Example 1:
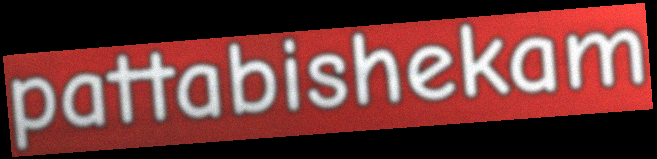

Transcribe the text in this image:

pattabishekam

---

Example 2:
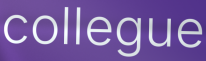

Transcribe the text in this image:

collegue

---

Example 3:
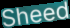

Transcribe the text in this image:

Sheed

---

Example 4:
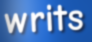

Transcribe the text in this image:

writs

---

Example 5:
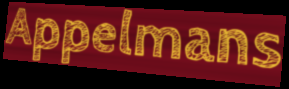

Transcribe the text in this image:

Appelmans